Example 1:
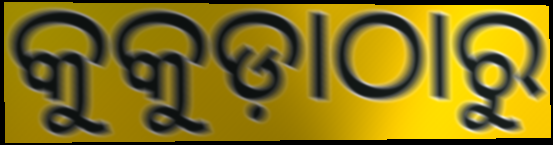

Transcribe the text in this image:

କୁକୁଡ଼ାଠାରୁ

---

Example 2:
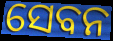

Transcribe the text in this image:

ସେବନ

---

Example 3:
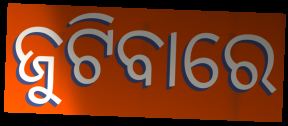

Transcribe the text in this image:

ଜୁଟିବାରେ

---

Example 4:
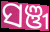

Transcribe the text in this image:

ସଞ୍ଜ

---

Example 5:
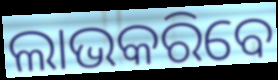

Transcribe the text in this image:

ଲାଭକରିବେ